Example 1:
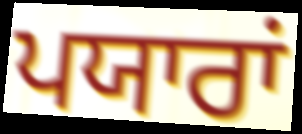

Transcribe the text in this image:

ਪਯਾਰਾਂ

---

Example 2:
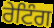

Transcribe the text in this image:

ਰੇਟਿੰਗ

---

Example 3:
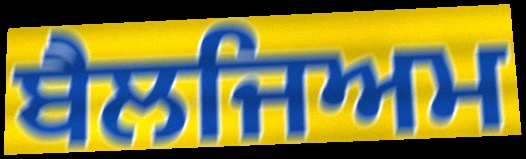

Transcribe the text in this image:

ਬੈਲਜਿਅਮ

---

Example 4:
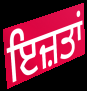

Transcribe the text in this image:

ਇਜ਼ਤਾਂ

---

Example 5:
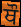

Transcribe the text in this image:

ਥੌ